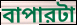
বাপারটা